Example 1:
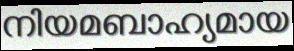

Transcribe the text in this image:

നിയമബാഹ്യമായ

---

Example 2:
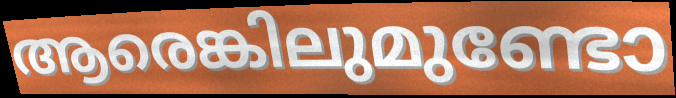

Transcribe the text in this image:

ആരെങ്കിലുമുണ്ടോ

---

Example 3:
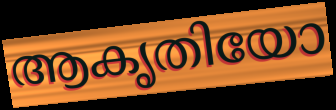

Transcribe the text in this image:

ആകൃതിയോ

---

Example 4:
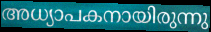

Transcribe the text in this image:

അധ്യാപകനായിരുന്നു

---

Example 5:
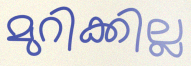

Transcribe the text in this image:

മുറിക്കില്ല